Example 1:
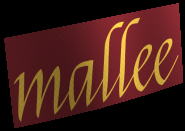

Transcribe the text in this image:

mallee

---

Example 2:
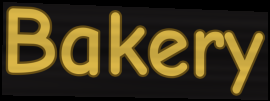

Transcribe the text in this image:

Bakery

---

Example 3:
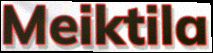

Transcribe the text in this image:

Meiktila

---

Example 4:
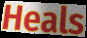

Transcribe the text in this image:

Heals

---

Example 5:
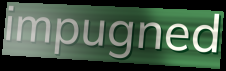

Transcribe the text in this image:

impugned